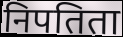
निपतिता